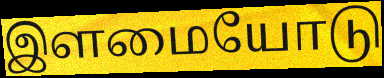
இளமையோடு